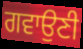
ਗਵਾਉਣੀ